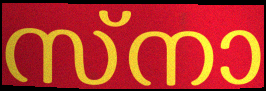
സ്‌നാ